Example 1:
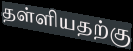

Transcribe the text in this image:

தள்ளியதற்கு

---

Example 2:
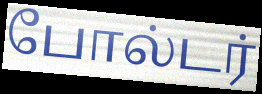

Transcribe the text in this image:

போல்டர்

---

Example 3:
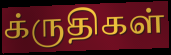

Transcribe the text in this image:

க்ருதிகள்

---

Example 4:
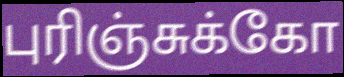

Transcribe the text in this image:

புரிஞ்சுக்கோ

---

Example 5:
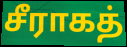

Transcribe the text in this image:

சீராகத்